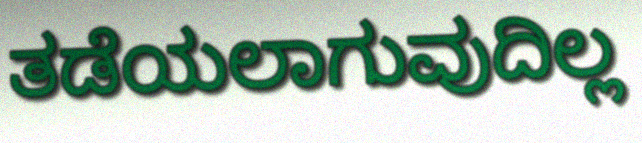
ತಡೆಯಲಾಗುವುದಿಲ್ಲ